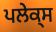
ਪਲੇਕ੍ਸ